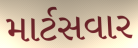
માર્ટસવાર